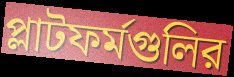
প্লাটফর্মগুলির